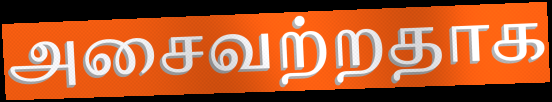
அசைவற்றதாக